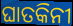
ଘାତକିନୀ